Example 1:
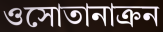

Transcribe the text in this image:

ওসোতানাক্রন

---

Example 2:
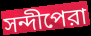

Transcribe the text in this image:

সন্দীপেরা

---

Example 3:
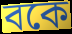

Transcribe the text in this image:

বকে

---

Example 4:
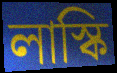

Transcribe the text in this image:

লাস্কি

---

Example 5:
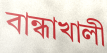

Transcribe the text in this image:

বান্ধাখালী